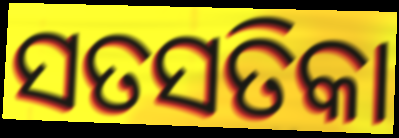
ସତସତିକା